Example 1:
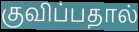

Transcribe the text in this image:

குவிப்பதால்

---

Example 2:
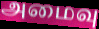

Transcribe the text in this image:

அமைவு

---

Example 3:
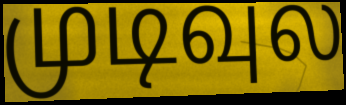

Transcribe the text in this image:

முடிவுல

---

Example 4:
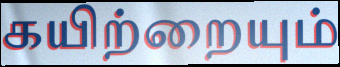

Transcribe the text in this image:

கயிற்றையும்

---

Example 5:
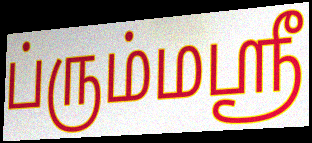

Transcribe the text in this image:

ப்ரும்மஸ்ரீ